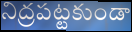
నిద్రపట్టకుండా